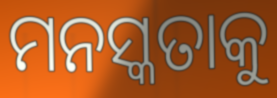
ମନସ୍କତାକୁ